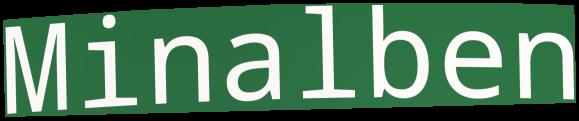
Minalben